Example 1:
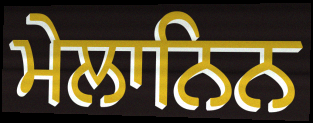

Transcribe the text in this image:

ਮੇਲਾਨਿਨ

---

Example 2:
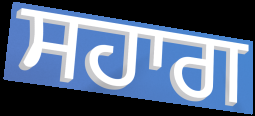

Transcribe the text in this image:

ਸਹਾਗ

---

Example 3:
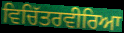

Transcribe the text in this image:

ਵਿਚਿੱਤਰਵੀਰਿਆ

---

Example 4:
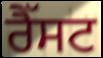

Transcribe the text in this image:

ਰੈੱਸਟ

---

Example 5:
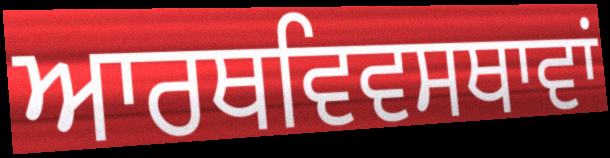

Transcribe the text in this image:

ਆਰਥਵਿਵਸਥਾਵਾਂ